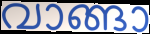
വാങ്ങാ